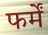
फर्में